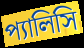
প্যালিসি